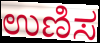
ಉಣಿಸ